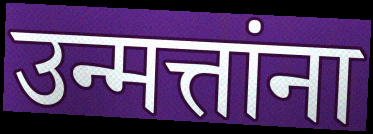
उन्मत्तांना